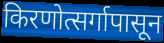
किरणोत्सर्गापासून